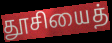
தூசியைத்